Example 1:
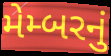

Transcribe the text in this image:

મેમ્બરનું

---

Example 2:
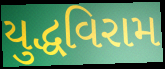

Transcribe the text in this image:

યુદ્ધવિરામ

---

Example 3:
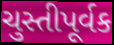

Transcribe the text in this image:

ચુસ્તીપૂર્વક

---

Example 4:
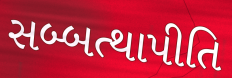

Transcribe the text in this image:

સબ્બત્થાપીતિ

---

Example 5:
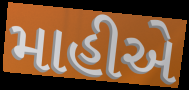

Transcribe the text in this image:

માહીએ